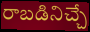
రాబడినిచ్చే